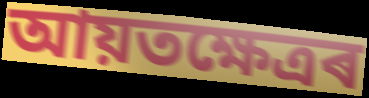
আয়তক্ষেত্ৰৰ